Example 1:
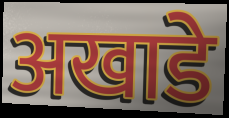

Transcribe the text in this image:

अखाडे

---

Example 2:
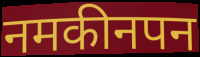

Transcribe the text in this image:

नमकीनपन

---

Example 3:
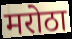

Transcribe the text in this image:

मरोठा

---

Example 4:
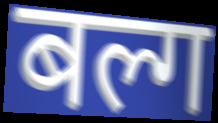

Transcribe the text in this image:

बल्ग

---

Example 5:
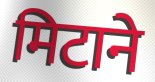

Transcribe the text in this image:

मिटाने